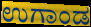
ಉಗಾಂಡ